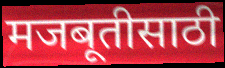
मजबूतीसाठी